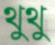
থুথু